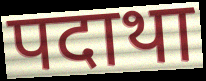
पदाथा